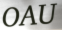
OAU